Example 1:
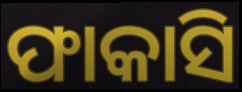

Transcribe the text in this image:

ଫାକାସି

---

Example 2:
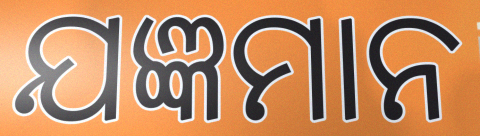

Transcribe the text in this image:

ଯଜ୍ଞମାନ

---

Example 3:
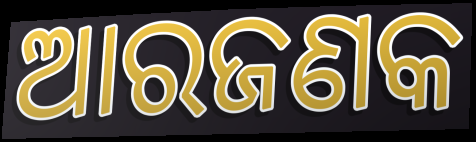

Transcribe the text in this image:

ଆରଜଣକ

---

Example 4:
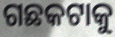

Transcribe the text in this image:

ଗଛକଟାକୁ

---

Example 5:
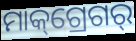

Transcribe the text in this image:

ମାକ୍‌ଗ୍ରେଗର୍